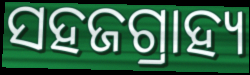
ସହଜଗ୍ରାହ୍ୟ